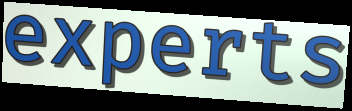
experts